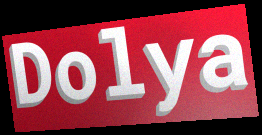
Dolya